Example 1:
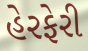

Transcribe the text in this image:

હેરફેરી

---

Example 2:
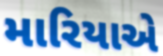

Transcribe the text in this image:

મારિયાએ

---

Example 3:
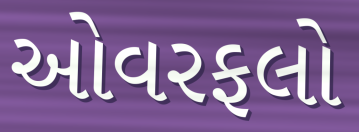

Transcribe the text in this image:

ઓવરફલો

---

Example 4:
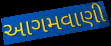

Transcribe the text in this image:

આગમવાણી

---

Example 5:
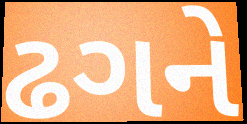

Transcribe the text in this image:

ઢગને